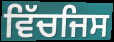
ਵਿੱਚਜਿਸ